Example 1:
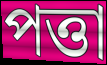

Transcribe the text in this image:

পত্তা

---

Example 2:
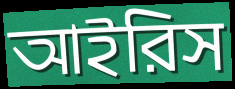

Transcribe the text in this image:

আইরিস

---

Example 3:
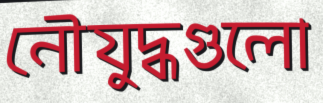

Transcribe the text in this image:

নৌযুদ্ধগুলো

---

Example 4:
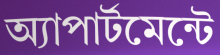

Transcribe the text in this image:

অ্যাপার্টমেন্টে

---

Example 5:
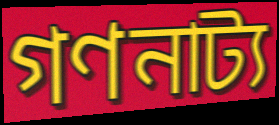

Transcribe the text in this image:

গণনাট্য